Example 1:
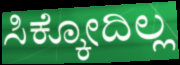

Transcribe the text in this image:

ಸಿಕ್ಕೋದಿಲ್ಲ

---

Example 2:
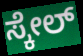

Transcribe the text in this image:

ಸ್ಕೇಲ್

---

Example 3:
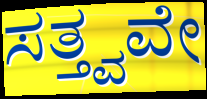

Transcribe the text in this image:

ಸತ್ತ್ವವೇ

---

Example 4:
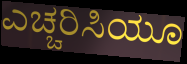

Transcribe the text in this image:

ಎಚ್ಚರಿಸಿಯೂ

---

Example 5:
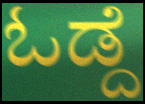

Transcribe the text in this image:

ಓಡ್ದೆ